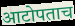
आटोपताच